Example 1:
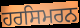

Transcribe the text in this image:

ਹਰਸਿਮਰਨ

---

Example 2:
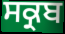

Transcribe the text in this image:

ਸਕ੍ਰਬ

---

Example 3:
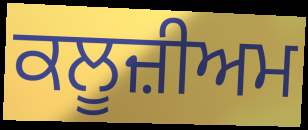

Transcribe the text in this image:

ਕਲੂਜ਼ੀਅਮ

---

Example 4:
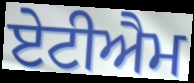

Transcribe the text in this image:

ਏਟੀਐਮ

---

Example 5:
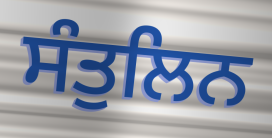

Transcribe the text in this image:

ਸੰਤੁਲਿਨ